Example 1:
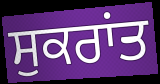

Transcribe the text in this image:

ਸੁਕਰਾਂਤ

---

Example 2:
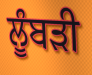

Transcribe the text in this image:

ਲੂੰਬੜੀ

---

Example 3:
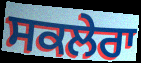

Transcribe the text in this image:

ਸਕਲੇਰਾ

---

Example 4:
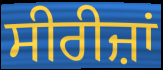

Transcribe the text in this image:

ਸੀਰੀਜ਼ਾਂ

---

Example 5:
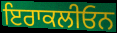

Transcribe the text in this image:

ਇਰਾਕਲੀਓਨ